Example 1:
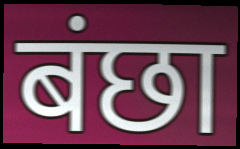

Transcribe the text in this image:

बंछा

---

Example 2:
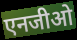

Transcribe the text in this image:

एनजीओ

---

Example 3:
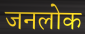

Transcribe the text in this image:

जनलोक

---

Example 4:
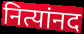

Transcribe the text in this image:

नित्यांनद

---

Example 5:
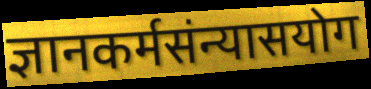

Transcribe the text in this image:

ज्ञानकर्मसंन्यासयोग